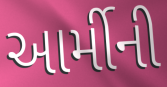
આર્મીની